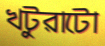
খটুৱাটো